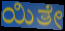
ಯಿತೇ